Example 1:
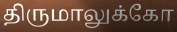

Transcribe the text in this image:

திருமாலுக்கோ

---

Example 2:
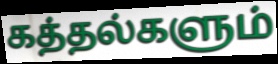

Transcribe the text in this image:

கத்தல்களும்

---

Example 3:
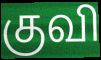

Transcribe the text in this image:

குவி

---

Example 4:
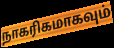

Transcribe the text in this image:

நாகரிகமாகவும்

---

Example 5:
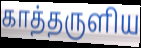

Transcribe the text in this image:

காத்தருளிய